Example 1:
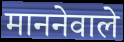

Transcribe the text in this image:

माननेवाले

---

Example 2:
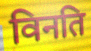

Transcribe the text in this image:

विनति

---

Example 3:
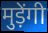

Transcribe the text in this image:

मुड़ेंगी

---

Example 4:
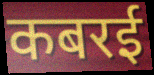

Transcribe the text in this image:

कबरई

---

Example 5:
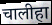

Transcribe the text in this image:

चालीहा